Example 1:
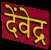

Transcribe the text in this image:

देंवेद्र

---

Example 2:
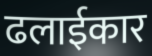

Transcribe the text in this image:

ढलाईकार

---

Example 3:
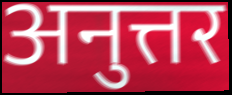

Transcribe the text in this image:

अनुत्तर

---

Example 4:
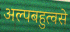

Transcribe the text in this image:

अल्पबहुत्वसे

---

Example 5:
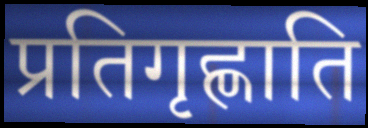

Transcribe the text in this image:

प्रतिगृह्णाति